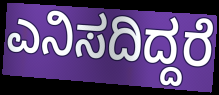
ಎನಿಸದಿದ್ದರೆ